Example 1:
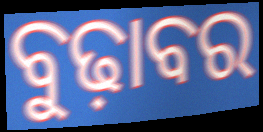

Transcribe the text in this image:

ବୁଢ଼ାବର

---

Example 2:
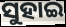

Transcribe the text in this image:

ସୁହାଇ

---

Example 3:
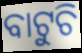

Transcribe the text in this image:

ବାଟୁଚି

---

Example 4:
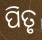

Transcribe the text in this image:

ପିତୃ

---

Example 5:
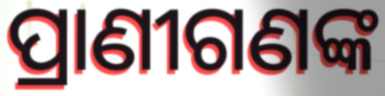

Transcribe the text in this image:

ପ୍ରାଣୀଗଣଙ୍କ